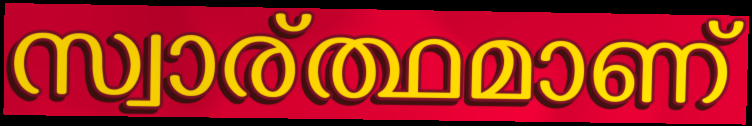
സ്വാര്ത്ഥമാണ്